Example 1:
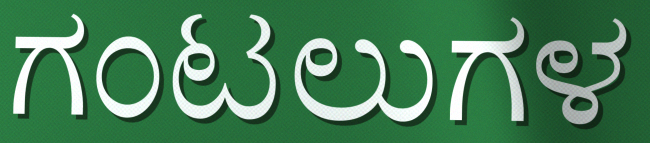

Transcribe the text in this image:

ಗಂಟಲುಗಳ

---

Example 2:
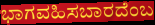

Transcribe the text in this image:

ಭಾಗವಹಿಸಬಾರದೆಂಬ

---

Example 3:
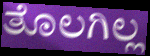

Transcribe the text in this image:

ತೊಲಗಿಲ್ಲ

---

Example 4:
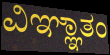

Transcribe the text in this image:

ವಿಞ್ಞಾತಂ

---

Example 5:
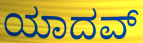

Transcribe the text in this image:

ಯಾದವ್